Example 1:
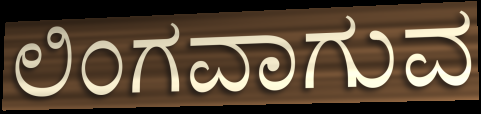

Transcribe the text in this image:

ಲಿಂಗವಾಗುವ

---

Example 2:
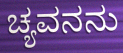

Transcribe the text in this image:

ಚ್ಯವನನು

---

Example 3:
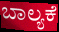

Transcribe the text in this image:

ಬಾಲ್ಯಕೆ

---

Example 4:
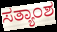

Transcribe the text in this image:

ಸತ್ಯಾಂಶ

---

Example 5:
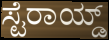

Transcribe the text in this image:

ಸ್ಟೆರಾಯ್ಡ್